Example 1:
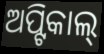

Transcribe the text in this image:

ଅପ୍ଟିକାଲ୍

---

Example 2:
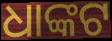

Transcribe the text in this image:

ଧାଙ୍କଟ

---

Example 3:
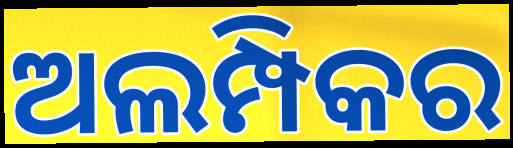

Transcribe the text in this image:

ଅଲମ୍ପିକର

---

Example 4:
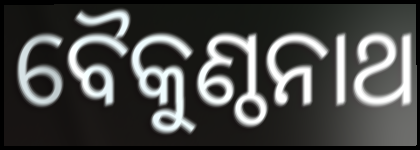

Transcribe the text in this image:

ବୈକୁଣ୍ଠନାଥ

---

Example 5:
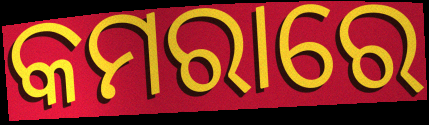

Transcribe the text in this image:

କମରାରେ